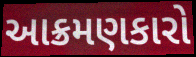
આક્રમણકારો